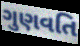
ગુણવતિ